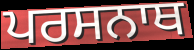
ਪਰਸਨਾਥ